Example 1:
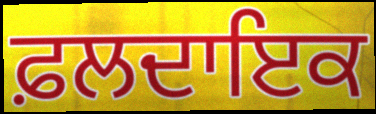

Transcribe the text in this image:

ਫ਼ਲਦਾਇਕ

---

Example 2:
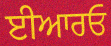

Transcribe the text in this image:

ਈਆਰਓ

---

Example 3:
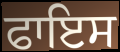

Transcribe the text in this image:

ਫਾਇਸ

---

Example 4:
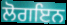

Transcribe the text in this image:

ਲੋਗਇਨ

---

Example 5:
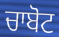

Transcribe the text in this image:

ਚਾਬੋਟ